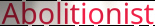
Abolitionist